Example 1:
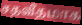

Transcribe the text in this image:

சதவீதமாக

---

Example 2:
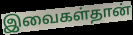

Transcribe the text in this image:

இவைகள்தான்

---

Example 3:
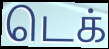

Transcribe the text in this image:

டெக்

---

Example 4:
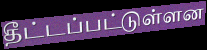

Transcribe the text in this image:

தீட்டப்பட்டுள்ளன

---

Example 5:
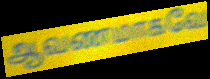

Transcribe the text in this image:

ஆவணமாகவே